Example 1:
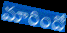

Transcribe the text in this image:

మారిందో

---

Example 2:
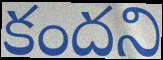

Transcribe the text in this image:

కందని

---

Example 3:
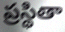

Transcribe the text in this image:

ప్రస్థితా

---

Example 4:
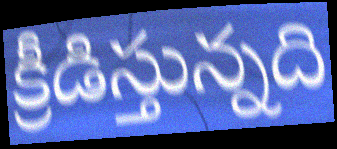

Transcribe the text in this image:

క్రీడిస్తున్నది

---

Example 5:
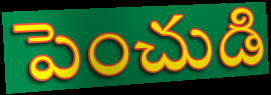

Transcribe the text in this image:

పెంచుడి